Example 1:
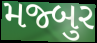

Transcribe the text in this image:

મજ્બુર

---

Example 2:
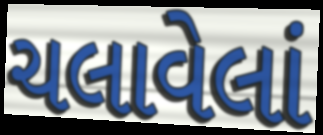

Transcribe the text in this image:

ચલાવેલાં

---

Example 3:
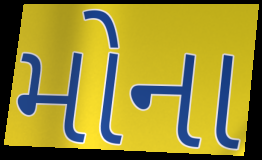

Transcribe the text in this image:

મોના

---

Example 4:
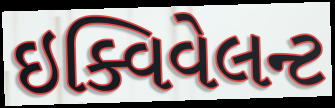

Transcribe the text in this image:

ઇક્વિવેલન્ટ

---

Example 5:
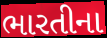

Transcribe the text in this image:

ભારતીના